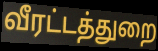
வீரட்டத்துறை